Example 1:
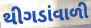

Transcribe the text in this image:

થીગડાંવાળી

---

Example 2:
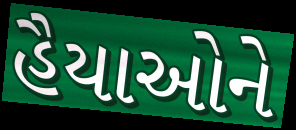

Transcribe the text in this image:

હૈયાઓને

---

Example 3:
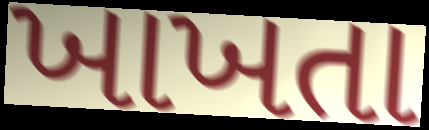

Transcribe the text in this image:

ખાખતા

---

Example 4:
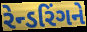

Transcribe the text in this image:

રેન્ડરિંગને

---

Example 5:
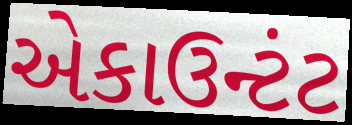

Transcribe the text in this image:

એકાઉન્ટંટ